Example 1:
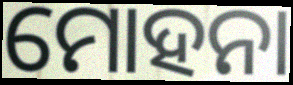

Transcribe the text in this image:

ମୋହନା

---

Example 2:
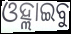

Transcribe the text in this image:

ଓହ୍ଲାଇବୁ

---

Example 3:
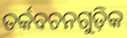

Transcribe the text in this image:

ତର୍କବଚନଗୁଡ଼ିକ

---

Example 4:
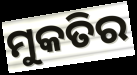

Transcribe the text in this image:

ମୁକତିର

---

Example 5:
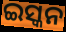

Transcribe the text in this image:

ଇସ୍କନ